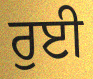
ਰੁਈ